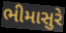
ભીમાસુરે